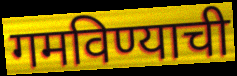
गमविण्याची